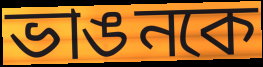
ভাঙনকে